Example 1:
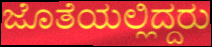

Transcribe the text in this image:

ಜೊತೆಯಲ್ಲಿದ್ದರು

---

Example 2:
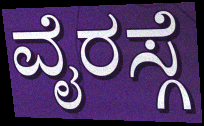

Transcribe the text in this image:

ವೈರಸ್ಗೆ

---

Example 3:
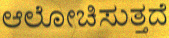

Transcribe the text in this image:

ಆಲೋಚಿಸುತ್ತದೆ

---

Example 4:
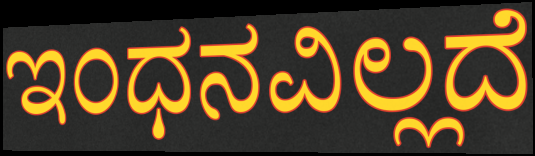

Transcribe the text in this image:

ಇಂಧನವಿಲ್ಲದೆ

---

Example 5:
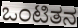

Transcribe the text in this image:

ಒಂಟಿತನ